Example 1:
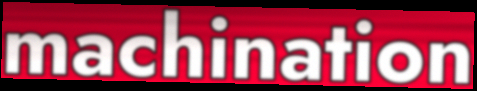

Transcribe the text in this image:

machination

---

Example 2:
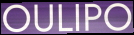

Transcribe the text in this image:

OULIPO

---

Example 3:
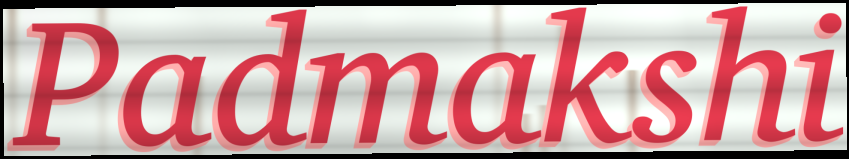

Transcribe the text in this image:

Padmakshi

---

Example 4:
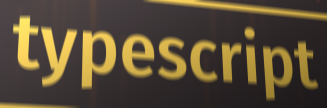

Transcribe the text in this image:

typescript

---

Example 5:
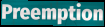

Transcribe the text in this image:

Preemption